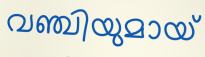
വഞ്ചിയുമായ്